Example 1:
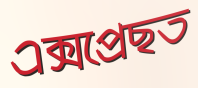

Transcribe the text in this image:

এক্সপ্ৰেছত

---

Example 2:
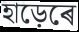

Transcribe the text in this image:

হাড়েৰে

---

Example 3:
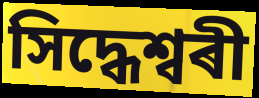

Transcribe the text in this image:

সিদ্ধেশ্বৰী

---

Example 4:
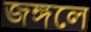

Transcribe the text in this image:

জঙ্গলে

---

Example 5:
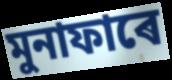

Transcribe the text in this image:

মুনাফাৰে